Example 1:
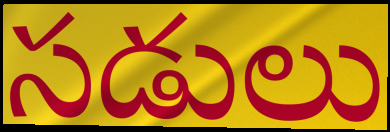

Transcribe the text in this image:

సడులు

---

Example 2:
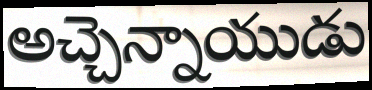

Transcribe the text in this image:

అచ్చెన్నాయుడు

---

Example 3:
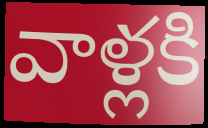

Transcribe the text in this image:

వాళ్లకి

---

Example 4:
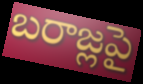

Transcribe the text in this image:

బరాజ్లపై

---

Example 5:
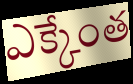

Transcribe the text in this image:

ఎక్కేంత